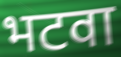
भटवा